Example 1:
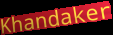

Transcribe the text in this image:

Khandaker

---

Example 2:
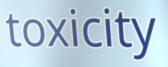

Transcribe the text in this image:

toxicity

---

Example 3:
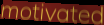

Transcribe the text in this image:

motivated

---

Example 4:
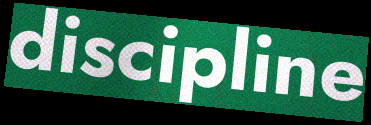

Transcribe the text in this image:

discipline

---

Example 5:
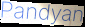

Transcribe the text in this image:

Pandyan